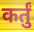
कर्तुं